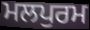
ਮਲਪੁਰਮ